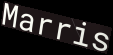
Marris